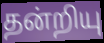
தன்றியு